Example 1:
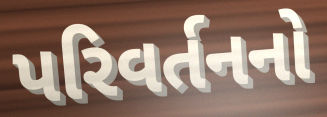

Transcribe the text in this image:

પરિવર્તનનો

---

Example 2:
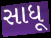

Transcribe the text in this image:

સાધૂ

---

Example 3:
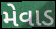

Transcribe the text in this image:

મેવાડ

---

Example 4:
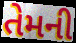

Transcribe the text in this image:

તેમની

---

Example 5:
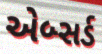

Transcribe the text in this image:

એબ્સર્ડ